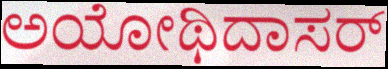
ಅಯೋಥಿದಾಸರ್